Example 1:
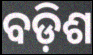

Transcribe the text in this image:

ବଡ଼ିଶ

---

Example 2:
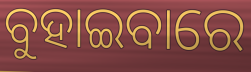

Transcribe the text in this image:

ବୁହାଇବାରେ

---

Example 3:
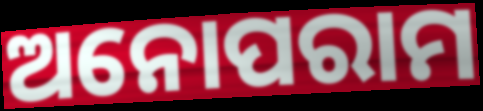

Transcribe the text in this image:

ଅନୋପରାମ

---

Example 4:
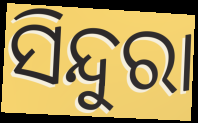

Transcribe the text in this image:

ସିନ୍ଦୁରା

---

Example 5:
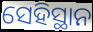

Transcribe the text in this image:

ସେହିସ୍ଥାନ